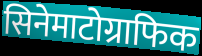
सिनेमाटोग्राफिक